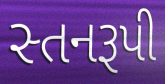
સ્તનરૂપી